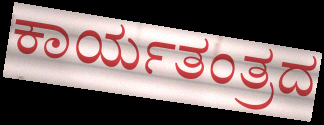
ಕಾರ್ಯತಂತ್ರದ